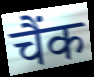
चैंक